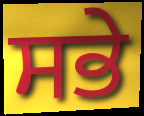
ਸਭੇ